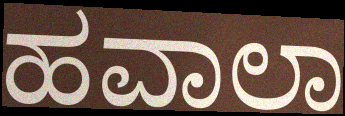
ಹವಾಲಾ